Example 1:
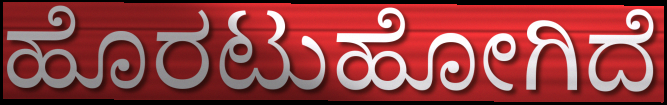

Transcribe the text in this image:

ಹೊರಟುಹೋಗಿದೆ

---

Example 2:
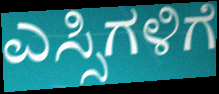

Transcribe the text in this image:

ಎಸ್ಸಿಗಳಿಗೆ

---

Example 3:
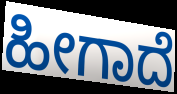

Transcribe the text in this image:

ಹೀಗಾದೆ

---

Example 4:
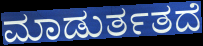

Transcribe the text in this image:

ಮಾಡುರ್ತತದೆ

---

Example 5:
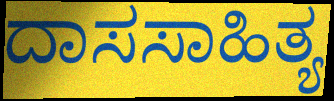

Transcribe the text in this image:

ದಾಸಸಾಹಿತ್ಯ